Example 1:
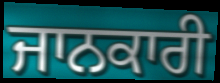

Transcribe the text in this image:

ਜਾਨਕਾਰੀ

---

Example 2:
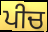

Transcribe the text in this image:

ਪੀਚ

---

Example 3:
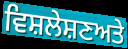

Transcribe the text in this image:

ਵਿਸ਼ਲੇਸ਼ਣਅਤੇ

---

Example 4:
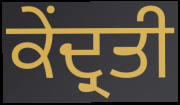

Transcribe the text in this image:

ਕੇਂਦ੍ਰਤੀ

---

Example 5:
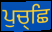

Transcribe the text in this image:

ਪੁਚ੍ਛਿ